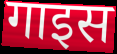
गाइस